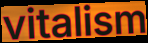
vitalism